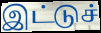
இட்டுச்